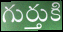
గుర్తుకి